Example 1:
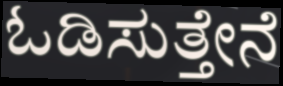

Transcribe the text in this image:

ಓಡಿಸುತ್ತೇನೆ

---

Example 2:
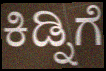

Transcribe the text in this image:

ಕಿಡ್ನಿಗೆ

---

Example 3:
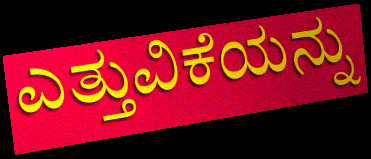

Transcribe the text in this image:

ಎತ್ತುವಿಕೆಯನ್ನು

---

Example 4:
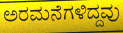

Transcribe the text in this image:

ಅರಮನೆಗಳಿದ್ದವು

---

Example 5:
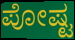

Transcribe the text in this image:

ಪೋಷ್ಟ